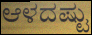
ಆಳದಷ್ಟು